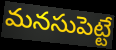
మనసుపెట్టే